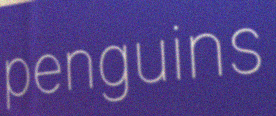
penguins